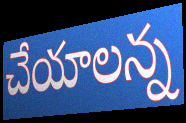
చేయాలన్న